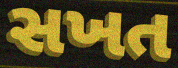
સખત